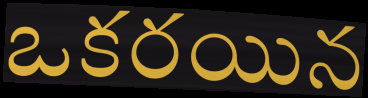
ఒకరయిన